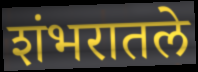
शंभरातले